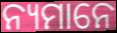
ନ୍ୟମାନେ